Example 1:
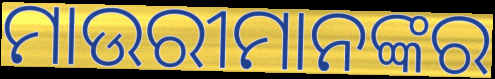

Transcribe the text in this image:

ମାଉରୀମାନଙ୍କର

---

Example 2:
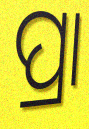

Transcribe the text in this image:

ପ୍ରା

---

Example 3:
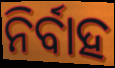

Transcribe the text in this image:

ନିର୍ବାହ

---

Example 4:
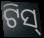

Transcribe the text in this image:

ଟିସ୍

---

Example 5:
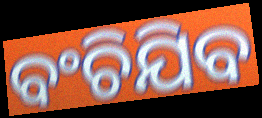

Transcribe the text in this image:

ବଂଚିଯିବ